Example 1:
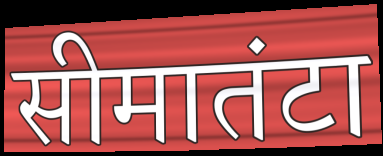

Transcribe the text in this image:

सीमातंटा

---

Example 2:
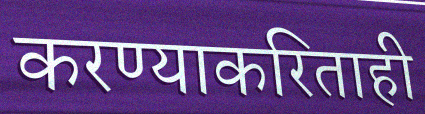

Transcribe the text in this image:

करण्याकरिताही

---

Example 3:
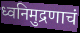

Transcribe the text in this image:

ध्वनिमुद्रणाचं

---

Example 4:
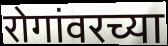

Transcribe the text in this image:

रोगांवरच्या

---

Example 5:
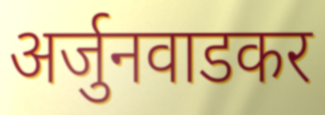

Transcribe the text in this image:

अर्जुनवाडकर